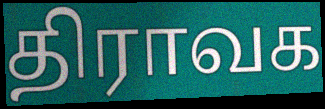
திராவக